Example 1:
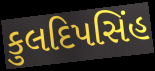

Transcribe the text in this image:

કુલદિપસિંહ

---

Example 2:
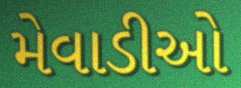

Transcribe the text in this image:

મેવાડીઓ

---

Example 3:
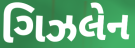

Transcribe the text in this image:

ગિઝલેન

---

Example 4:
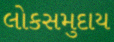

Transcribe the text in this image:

લોકસમુદાય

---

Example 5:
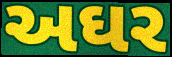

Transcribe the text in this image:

અઘર